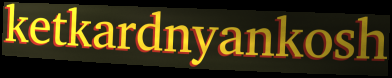
ketkardnyankosh